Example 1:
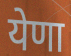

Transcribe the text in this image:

येणा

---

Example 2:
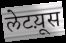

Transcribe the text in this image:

लेटय़ूस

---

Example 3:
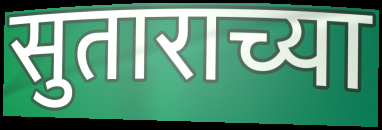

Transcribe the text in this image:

सुताराच्या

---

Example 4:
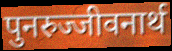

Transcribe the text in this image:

पुनरुज्जीवनार्थ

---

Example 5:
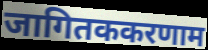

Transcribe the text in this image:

जागितककरणाम